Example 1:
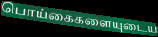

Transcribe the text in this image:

பொய்கைகளையுடைய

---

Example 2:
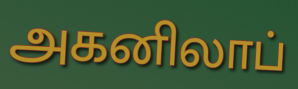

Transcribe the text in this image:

அகனிலாப்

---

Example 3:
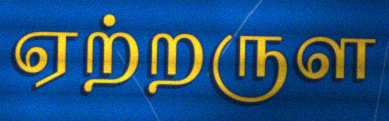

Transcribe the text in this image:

ஏற்றருள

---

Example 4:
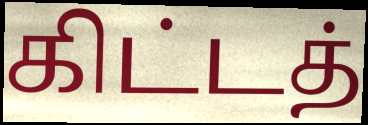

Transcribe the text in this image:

கிட்டத்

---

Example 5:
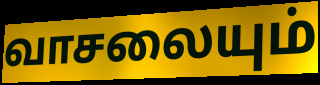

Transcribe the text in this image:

வாசலையும்